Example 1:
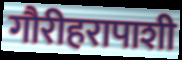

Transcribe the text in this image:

गौरीहरापाशी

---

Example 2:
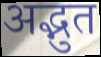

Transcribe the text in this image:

अद्भुत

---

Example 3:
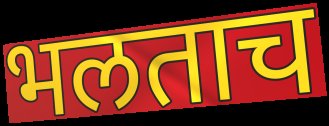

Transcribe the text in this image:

भलताच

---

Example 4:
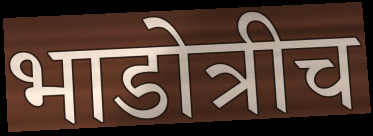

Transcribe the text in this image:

भाडोत्रीच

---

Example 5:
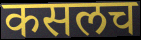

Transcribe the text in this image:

कसलच